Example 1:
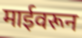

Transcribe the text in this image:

माईवरून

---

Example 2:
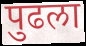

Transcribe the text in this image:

पुढला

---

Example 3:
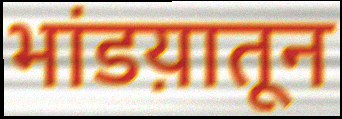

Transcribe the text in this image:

भांडय़ातून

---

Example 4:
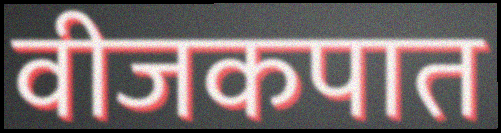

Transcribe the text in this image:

वीजकपात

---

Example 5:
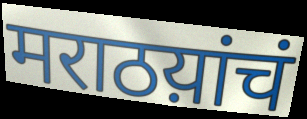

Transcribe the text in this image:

मराठय़ांचं